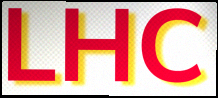
LHC